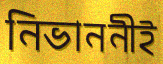
নিভাননীই